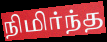
நிமிர்ந்த